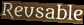
Reusable